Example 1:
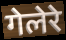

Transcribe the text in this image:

गेलेरे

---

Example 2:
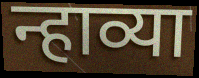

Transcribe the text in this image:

न्हाव्या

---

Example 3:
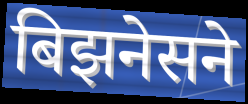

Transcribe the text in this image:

बिझनेसने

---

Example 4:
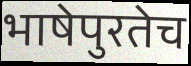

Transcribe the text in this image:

भाषेपुरतेच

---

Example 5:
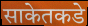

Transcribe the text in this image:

साकेतकडे